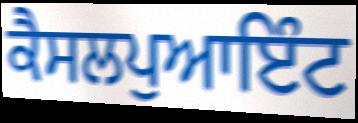
ਕੈਸਲਪੁਆਇੰਟ